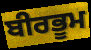
ਬੀਰਭੂਮ